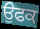
ਉਫਕ